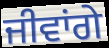
ਜੀਵਾਂਗੇ